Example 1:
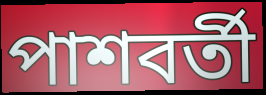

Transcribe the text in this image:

পাশবর্তী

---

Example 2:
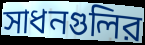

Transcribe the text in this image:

সাধনগুলির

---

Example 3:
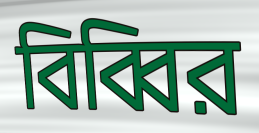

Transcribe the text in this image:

বিব্বির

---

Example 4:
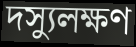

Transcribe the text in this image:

দস্যুলক্ষণ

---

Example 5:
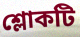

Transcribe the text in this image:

শ্লোকটি